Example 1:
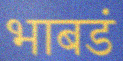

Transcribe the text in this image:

भाबडं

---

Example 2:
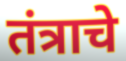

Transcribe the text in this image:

तंत्राचे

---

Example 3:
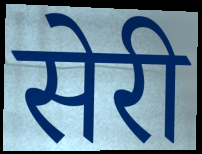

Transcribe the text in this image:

सेरी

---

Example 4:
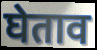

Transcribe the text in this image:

घेताव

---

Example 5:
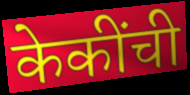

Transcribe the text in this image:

केकींची